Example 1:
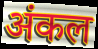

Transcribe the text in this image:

अंकल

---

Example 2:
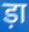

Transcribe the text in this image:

ड़ा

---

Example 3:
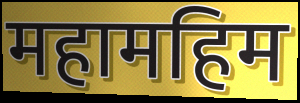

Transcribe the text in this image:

महामहिम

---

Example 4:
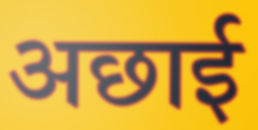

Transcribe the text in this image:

अछाई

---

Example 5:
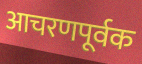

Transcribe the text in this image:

आचरणपूर्वक